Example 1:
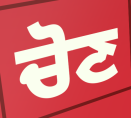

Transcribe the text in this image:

ਚੋਣ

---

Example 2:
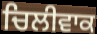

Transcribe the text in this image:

ਚਿਲੀਵਾਕ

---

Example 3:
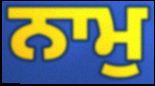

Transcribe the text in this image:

ਨਾਮੁ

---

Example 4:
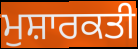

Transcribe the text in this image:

ਮੁਸ਼ਾਰਕਤੀ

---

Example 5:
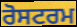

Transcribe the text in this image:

ਰੋਸਟਰਮ